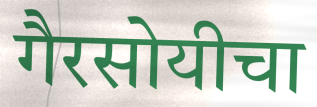
गैरसोयीचा